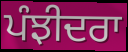
ਪੰਝੀਦਰਾ